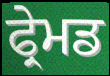
ਫ੍ਰੇਮਡ